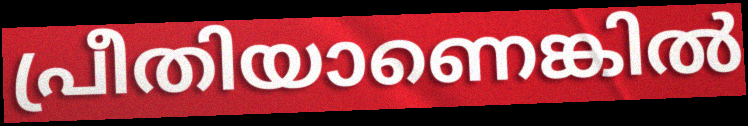
പ്രീതിയാണെങ്കിൽ